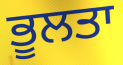
ਭੂਲਤਾ